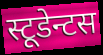
स्टूडेन्टस